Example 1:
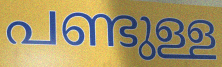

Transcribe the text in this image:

പണ്ടുള്ള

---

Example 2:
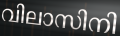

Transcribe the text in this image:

വിലാസിനി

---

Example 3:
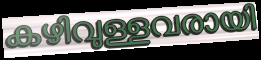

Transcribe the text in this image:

കഴിവുള്ളവരായി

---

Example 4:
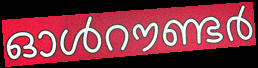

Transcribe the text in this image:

ഓൾറൗണ്ടർ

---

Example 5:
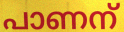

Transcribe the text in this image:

പാണന്